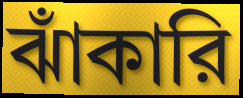
ঝাঁকারি